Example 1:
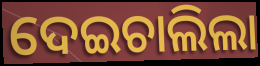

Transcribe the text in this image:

ଦେଇଚାଲିଲା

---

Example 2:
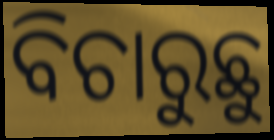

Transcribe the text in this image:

ବିଚାରୁଛୁ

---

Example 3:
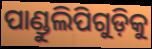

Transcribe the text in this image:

ପାଣ୍ଡୁଲିପିଗୁଡ଼ିକୁ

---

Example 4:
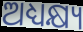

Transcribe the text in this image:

ଅଧ୍ୟକ୍ଷ୍ୟ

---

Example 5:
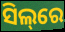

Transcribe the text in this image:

ସିଲ୍‌ରେ